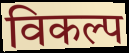
विकल्‍प